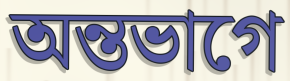
অন্তভাগে